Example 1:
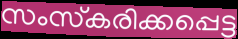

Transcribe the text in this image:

സംസ്‌കരിക്കപ്പെട്ട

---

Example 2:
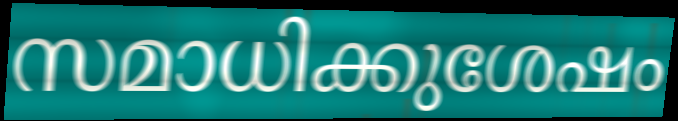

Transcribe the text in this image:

സമാധിക്കുശേഷം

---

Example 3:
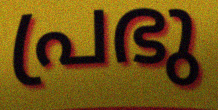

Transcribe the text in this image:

പ്രഭു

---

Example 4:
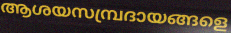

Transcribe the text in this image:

ആശയസമ്പ്രദായങ്ങളെ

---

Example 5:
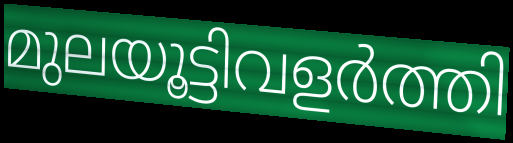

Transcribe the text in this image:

മുലയൂട്ടിവളർത്തി